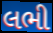
લભી